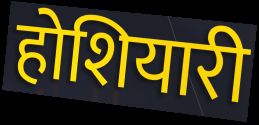
होशियारी